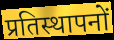
प्रतिस्थापनों